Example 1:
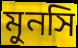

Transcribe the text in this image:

মুনসি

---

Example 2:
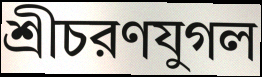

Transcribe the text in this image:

শ্রীচরণযুগল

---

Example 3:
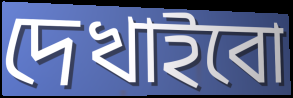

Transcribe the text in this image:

দেখাইবো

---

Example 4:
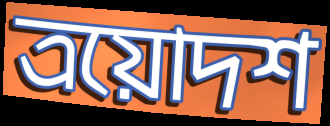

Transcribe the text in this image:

ত্রয়োদশ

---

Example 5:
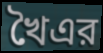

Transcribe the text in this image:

খৈএর